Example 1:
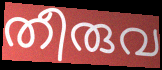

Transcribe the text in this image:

തീരുവ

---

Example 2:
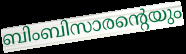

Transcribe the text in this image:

ബിംബിസാരന്റെയും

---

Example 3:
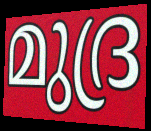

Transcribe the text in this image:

മുദ്ര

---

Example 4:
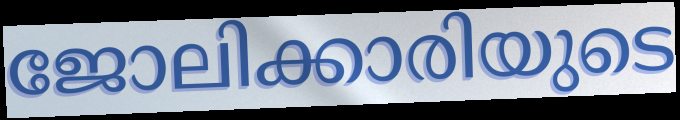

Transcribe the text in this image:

ജോലിക്കാരിയുടെ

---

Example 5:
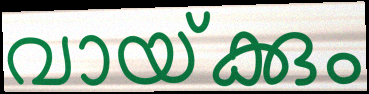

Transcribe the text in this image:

വായ്‌ക്കും